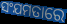
ସଂଯମତାରେ